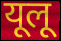
यूलू